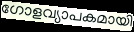
ഗോളവ്യാപകമായി